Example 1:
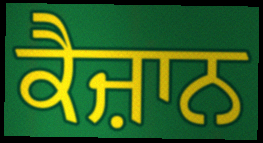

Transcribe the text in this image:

ਕੈਜ਼ਾਨ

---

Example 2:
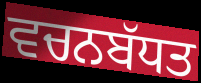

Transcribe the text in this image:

ਵਚਨਬੱਧਤ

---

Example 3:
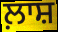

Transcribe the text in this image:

ਲ਼ਾਸ਼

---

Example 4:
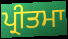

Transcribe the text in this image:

ਪ੍ਰੀਤਮਾ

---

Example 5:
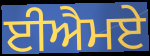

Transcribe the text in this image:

ਈਐਮਏ